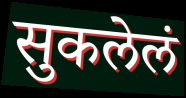
सुकलेलं